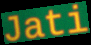
Jati